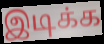
இடிக்க